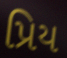
પ્રિય